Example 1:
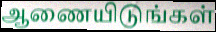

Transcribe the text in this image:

ஆணையிடுங்கள்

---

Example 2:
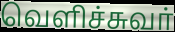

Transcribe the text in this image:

வெளிச்சுவர்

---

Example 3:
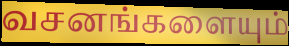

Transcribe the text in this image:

வசனங்களையும்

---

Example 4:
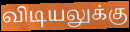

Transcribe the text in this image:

விடியலுக்கு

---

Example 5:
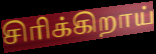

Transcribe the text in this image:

சிரிக்கிறாய்